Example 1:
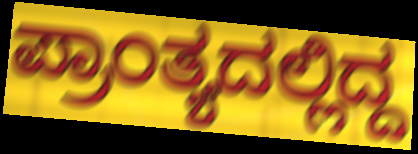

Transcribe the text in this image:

ಪ್ರಾಂತ್ಯದಲ್ಲಿದ್ದ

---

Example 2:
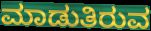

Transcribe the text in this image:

ಮಾಡುತಿರುವ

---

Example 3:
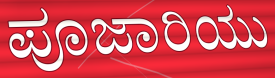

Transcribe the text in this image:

ಪೂಜಾರಿಯು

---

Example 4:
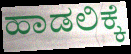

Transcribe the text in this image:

ಹಾಡಲಿಕ್ಕೆ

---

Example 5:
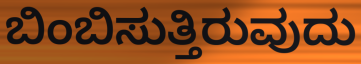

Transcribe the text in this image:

ಬಿಂಬಿಸುತ್ತಿರುವುದು